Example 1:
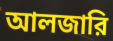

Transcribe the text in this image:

আলজারি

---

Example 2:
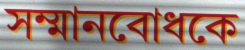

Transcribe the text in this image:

সম্মানবোধকে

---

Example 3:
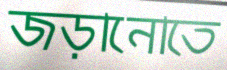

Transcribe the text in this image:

জড়ানোতে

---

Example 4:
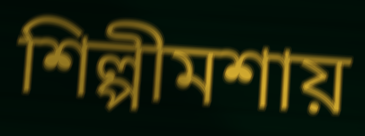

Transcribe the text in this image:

শিল্পীমশায়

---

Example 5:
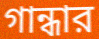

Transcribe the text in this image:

গান্ধার